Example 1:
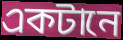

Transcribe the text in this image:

একটানে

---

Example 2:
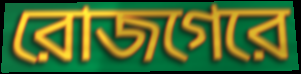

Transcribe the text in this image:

রোজগেরে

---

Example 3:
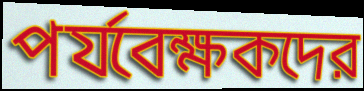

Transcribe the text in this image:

পর্যবেক্ষকদের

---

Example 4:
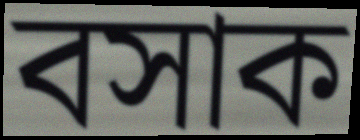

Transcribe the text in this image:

বসাক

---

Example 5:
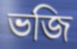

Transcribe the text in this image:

ভজি